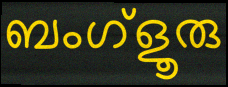
ബംഗ്ളൂരു